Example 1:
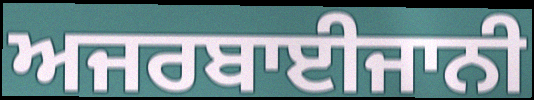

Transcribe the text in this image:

ਅਜਰਬਾਈਜਾਨੀ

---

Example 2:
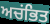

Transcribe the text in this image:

ਅਚਂਭਿਤ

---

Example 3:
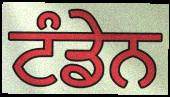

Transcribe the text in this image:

ਟੰਡੇਨ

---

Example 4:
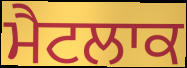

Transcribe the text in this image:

ਮੈਟਲਾਕ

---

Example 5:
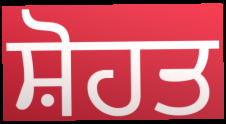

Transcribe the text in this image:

ਸ਼ੋਹਤ